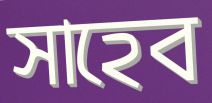
সাহেব